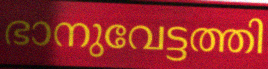
ഭാനുവേട്ടത്തി